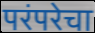
परंपरेचा